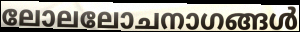
ലോലലോചനാഗങ്ങൾ